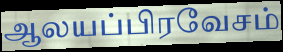
ஆலயப்பிரவேசம்